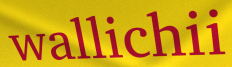
wallichii